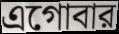
এগোবার